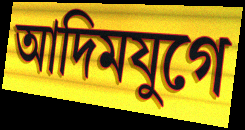
আদিমযুগে